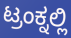
ಟ್ರಂಕ್ನಲ್ಲಿ